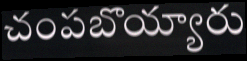
చంపబొయ్యారు